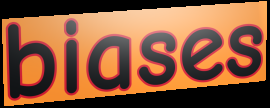
biases